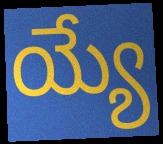
య్యే